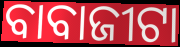
ବାବାଜୀଟା